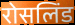
रोसलिंड